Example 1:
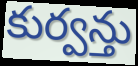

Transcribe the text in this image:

కుర్వన్తు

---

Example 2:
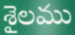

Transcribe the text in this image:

శైలము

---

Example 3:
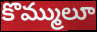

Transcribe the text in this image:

కొమ్ములూ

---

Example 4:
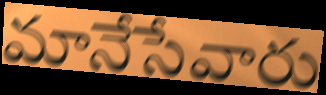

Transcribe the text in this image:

మానేసేవారు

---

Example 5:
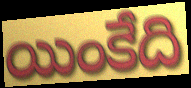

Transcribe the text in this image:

యింకేది